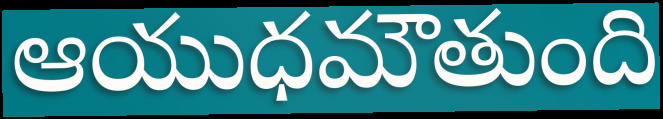
ఆయుధమౌతుంది